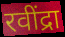
रवींद्रा